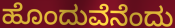
ಹೊಂದುವೆನೆಂದು